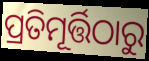
ପ୍ରତିମୂର୍ତ୍ତିଠାରୁ